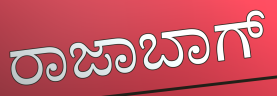
ರಾಜಾಬಾಗ್